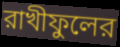
রাখীফুলের